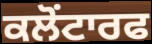
ਕਲੋਂਟਾਰਫ